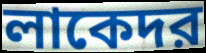
লাকেদর